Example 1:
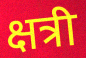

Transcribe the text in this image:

क्षत्री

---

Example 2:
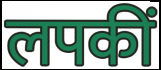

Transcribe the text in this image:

लपकीं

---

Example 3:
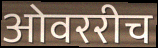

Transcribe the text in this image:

ओवररीच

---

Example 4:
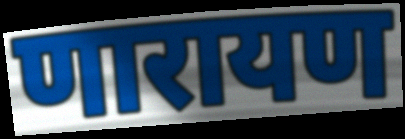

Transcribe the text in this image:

णारायण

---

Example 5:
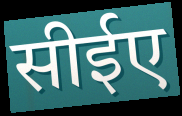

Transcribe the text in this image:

सीईए